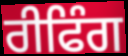
ਰੀਫਿੰਗ